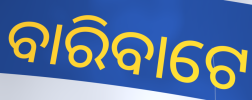
ବାରିବାଟେ